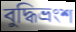
বুদ্ধিভ্রংশ